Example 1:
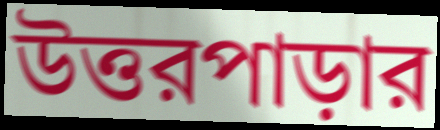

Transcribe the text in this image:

উত্তরপাড়ার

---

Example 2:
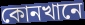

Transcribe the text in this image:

কোনখানে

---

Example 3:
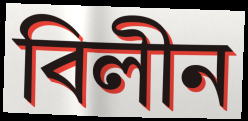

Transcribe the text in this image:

বিলীন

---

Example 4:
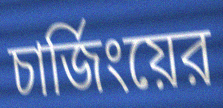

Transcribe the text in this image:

চার্জিংয়ের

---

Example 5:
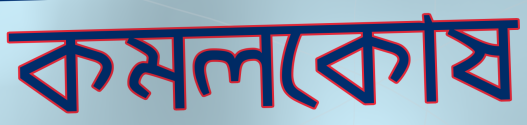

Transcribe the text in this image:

কমলকোষ